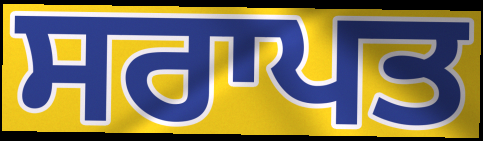
ਸਰਾਪਤ